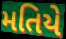
મતિયે